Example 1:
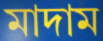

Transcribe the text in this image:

মাদাম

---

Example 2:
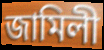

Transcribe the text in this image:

জামিলী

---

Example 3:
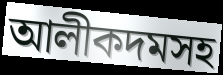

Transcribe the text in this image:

আলীকদমসহ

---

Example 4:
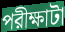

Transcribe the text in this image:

পরীক্ষাটা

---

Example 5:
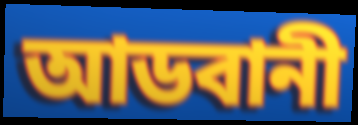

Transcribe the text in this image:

আডবানী